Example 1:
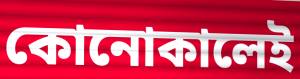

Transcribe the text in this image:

কোনোকালেই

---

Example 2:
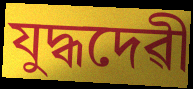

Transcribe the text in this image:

যুদ্ধদেৱী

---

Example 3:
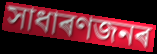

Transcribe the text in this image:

সাধাৰণজনৰ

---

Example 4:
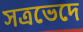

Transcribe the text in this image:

সত্ৰভেদে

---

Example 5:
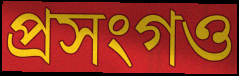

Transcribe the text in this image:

প্ৰসংগও